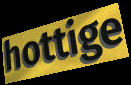
hottige